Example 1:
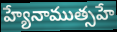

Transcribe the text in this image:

హ్యేనాముత్సహే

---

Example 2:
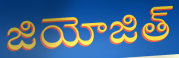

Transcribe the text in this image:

జియోజిత్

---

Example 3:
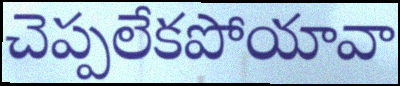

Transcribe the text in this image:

చెప్పలేకపోయావా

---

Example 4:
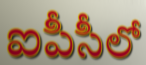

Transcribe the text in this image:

ఐపీసీలో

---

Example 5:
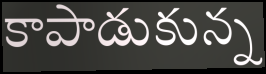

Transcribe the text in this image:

కాపాడుకున్న